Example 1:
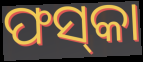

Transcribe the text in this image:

ଫସ୍‌କା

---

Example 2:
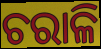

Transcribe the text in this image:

ଚରାଳି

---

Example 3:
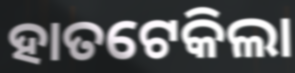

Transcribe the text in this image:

ହାତଟେକିଲା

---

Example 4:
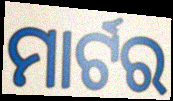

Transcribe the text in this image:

ମାର୍ଟର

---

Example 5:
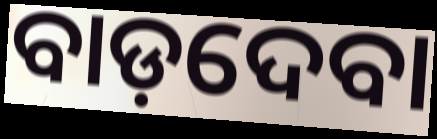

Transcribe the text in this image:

ବାଡ଼ଦେବା